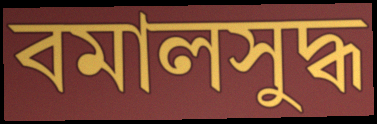
বমালসুদ্ধ